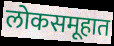
लोकसमूहात